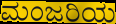
ಮಂಜರಿಯ